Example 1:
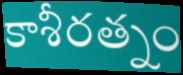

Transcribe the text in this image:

కాశీరత్నం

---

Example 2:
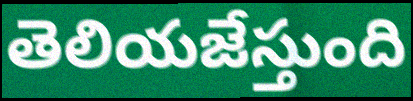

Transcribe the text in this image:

తెలియజేస్తుంది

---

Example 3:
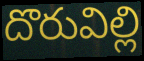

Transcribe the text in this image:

దొరువిల్లి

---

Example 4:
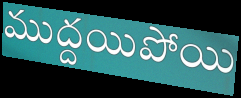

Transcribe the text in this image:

ముద్దయిపోయి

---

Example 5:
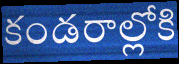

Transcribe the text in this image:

కండరాల్లోకి